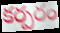
కర్పరం